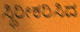
ಸ್ಥಿರೀಕರಿಸಿದ